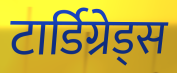
टार्डिग्रेड्स